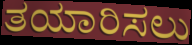
ತಯಾರಿಸಲು